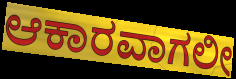
ಆಕಾರವಾಗಲೀ